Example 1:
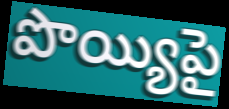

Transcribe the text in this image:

పొయ్యిపై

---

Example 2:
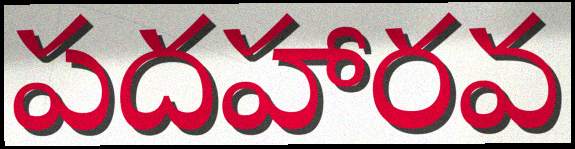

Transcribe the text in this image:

పదహారవ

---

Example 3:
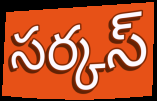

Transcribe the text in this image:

సర్కస్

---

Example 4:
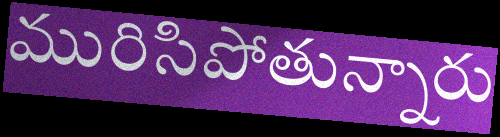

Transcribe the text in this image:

మురిసిపోతున్నారు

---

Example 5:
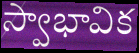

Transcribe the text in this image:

స్వాభావిక